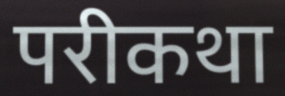
परीकथा